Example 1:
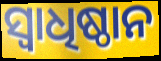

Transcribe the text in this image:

ସ୍ୱାଧିଷ୍ଠାନ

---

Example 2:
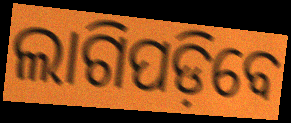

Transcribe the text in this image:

ଲାଗିପଡ଼ିବେ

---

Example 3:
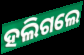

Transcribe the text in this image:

ହଲିଗଲେ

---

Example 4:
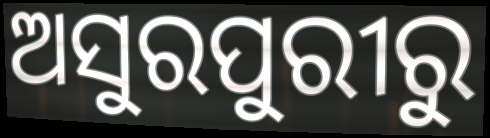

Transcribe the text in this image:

ଅସୁରପୁରୀରୁ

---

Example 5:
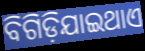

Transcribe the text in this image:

ବିଗିଡ଼ିଯାଇଥାଏ